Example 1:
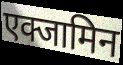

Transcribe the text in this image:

एक्जामिन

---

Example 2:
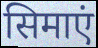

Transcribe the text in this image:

सिमाएं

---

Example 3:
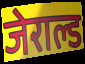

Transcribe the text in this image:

जेराल्ड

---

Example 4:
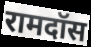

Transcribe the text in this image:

रामदॉस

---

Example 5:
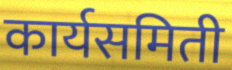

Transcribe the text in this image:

कार्यसमिती